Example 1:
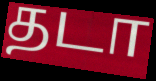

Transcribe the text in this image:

தடா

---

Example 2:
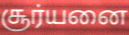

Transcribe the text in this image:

சூர்யனை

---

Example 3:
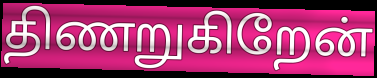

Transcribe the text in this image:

திணறுகிறேன்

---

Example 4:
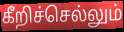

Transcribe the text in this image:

கீறிச்செல்லும்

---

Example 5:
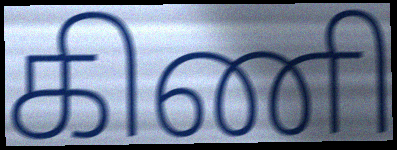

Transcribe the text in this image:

கிணி